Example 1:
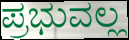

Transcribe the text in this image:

ಪ್ರಭುವಲ್ಲ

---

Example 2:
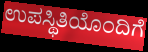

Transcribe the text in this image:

ಉಪಸ್ಥಿತಿಯೊಂದಿಗೆ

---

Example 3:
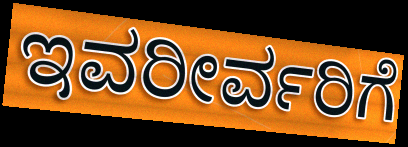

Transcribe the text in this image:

ಇವರೀರ್ವರಿಗೆ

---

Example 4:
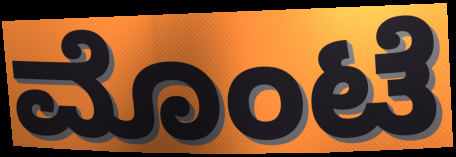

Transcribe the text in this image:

ಮೊಂಟೆ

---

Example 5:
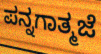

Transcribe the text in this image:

ಪನ್ನಗಾತ್ಮಜೆ